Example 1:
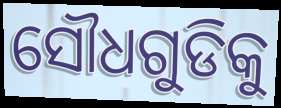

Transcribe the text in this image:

ସୌଧଗୁଡିକୁ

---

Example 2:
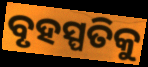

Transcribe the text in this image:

ବୃହସ୍ପତିକୁ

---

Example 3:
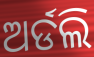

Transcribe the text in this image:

ଅର୍ଡଲି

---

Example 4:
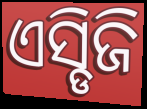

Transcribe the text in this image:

ଏସ୍ଡିଜି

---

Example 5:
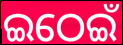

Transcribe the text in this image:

ଇଠେଇଁ